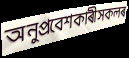
অনুপ্ৰবেশকাৰীসকলৰ